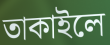
তাকাইলে